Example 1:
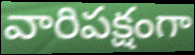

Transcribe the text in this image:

వారిపక్షంగా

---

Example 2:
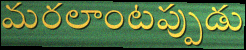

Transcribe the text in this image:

మరలాంటప్పుడు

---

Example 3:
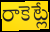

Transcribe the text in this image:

రాకెట్లే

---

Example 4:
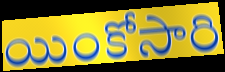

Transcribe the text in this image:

యింకోసారి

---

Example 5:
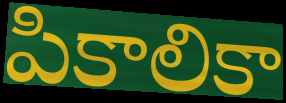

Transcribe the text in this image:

పికాలికా